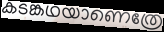
കടങ്കഥയാണെത്രേ